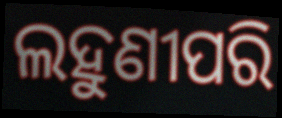
ଲହୁଣୀପରି